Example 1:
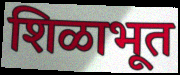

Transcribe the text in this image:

शिळाभूत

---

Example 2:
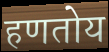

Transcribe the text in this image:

हणतोय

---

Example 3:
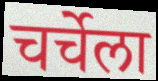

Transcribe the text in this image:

चर्चेला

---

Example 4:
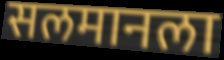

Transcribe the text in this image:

सलमानला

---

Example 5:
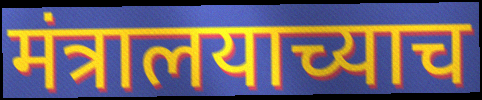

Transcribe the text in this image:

मंत्रालयाच्याच